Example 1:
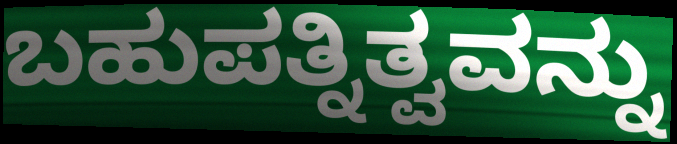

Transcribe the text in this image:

ಬಹುಪತ್ನಿತ್ವವನ್ನು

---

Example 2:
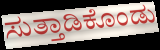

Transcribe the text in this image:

ಸುತ್ತಾಡಿಕೊಂಡು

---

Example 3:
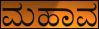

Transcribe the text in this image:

ಮಹಾವ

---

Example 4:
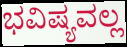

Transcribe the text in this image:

ಭವಿಷ್ಯವಲ್ಲ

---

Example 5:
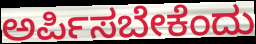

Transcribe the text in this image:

ಅರ್ಪಿಸಬೇಕೆಂದು